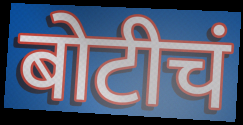
बोटीचं